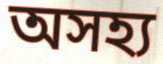
অসহ্য